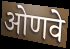
ओणवे